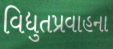
વિદ્યુતપ્રવાહના